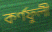
কর্ণফুলী